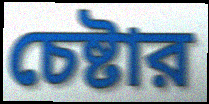
চেষ্টার